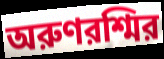
অরুণরশ্মির